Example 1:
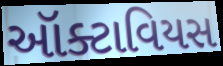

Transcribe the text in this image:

ઑક્ટાવિયસ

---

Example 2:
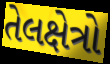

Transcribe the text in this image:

તેલક્ષેત્રો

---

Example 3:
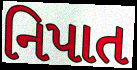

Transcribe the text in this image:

નિપાત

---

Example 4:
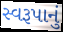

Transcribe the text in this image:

સ્વરૂપાનું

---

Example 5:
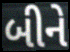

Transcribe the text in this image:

બીને